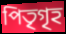
পিতৃগৃহ